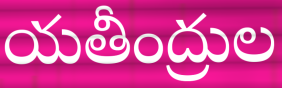
యతీంద్రుల